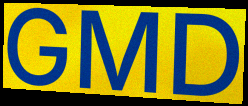
GMD